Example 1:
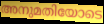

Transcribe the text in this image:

അനുമതിയോടെ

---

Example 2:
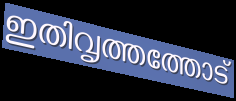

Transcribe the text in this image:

ഇതിവൃത്തത്തോട്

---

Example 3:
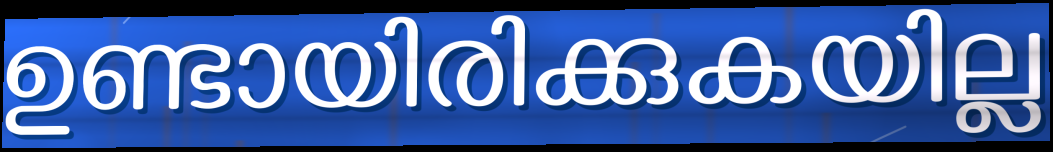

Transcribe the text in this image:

ഉണ്ടായിരിക്കുകയില്ല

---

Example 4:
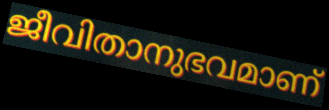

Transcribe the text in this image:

ജീവിതാനുഭവമാണ്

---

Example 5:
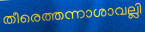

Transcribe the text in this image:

തീരെത്തന്നാശാവല്ലി